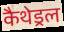
कैथेड्रल